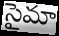
సైమా